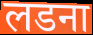
लडना